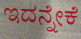
ಇದನ್ನೇಕೆ